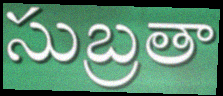
సుబ్రతా